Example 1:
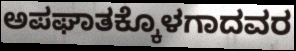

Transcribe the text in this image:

ಅಪಘಾತಕ್ಕೊಳಗಾದವರ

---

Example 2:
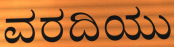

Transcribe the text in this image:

ವರದಿಯು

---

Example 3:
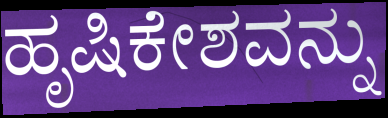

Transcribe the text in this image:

ಹೃಷಿಕೇಶವನ್ನು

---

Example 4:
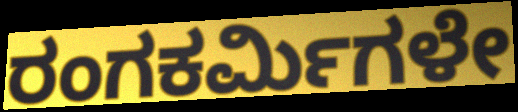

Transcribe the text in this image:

ರಂಗಕರ್ಮಿಗಳೇ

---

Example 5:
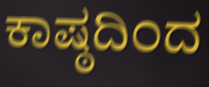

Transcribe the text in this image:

ಕಾಷ್ಠದಿಂದ